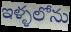
ఇళ్ళలోను